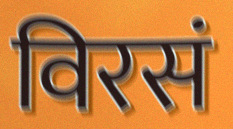
विरसं